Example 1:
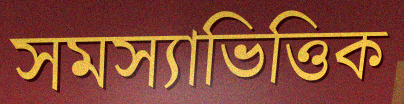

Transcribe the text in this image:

সমস্যাভিত্তিক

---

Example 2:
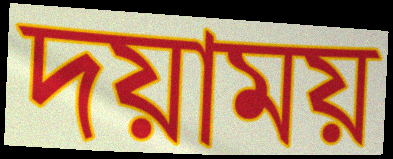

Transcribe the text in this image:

দয়াময়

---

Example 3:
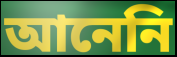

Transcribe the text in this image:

আনেনি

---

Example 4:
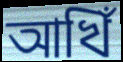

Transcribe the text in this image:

আখিঁ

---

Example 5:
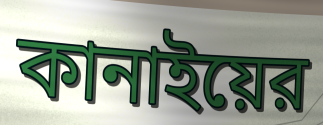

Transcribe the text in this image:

কানাইয়ের